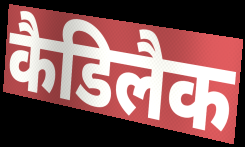
कैडिलैक